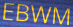
EBWM